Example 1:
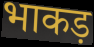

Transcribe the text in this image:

भाकड़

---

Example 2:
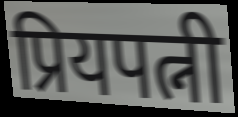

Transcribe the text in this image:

प्रियपत्नी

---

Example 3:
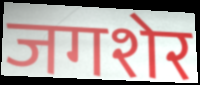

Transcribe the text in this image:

जगशेर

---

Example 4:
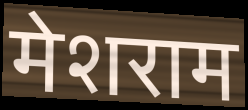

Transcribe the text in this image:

मेशराम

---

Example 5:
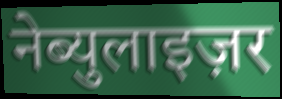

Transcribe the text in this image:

नेब्युलाइज़र